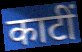
काटीं